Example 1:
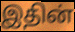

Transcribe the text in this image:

இதின்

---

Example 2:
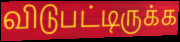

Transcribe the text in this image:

விடுபட்டிருக்க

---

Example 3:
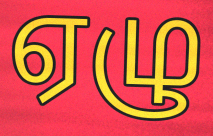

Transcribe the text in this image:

ஏழு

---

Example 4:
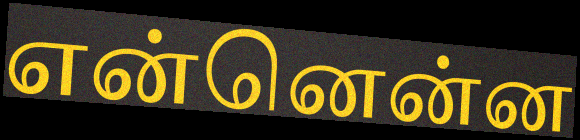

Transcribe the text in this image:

என்னென்ன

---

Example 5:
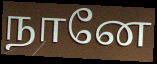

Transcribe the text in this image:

நானே